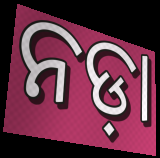
ନଡ଼ା